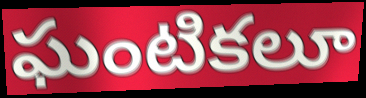
ఘంటికలూ